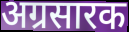
अग्रसारक